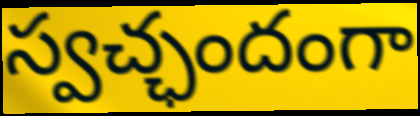
స్వచ్ఛందంగా